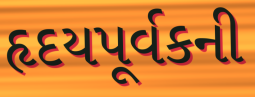
હૃદયપૂર્વકની